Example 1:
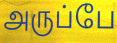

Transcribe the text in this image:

அருப்பே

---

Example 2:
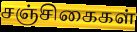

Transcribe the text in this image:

சஞ்சிகைகள்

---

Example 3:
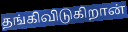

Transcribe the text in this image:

தங்கிவிடுகிறான்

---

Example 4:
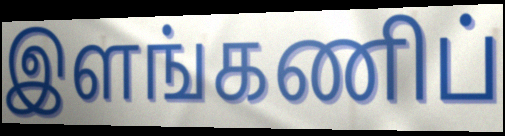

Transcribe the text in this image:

இளங்கணிப்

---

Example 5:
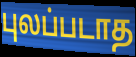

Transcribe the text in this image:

புலப்படாத